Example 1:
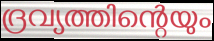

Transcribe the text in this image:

ദ്രവ്യത്തിന്റെയും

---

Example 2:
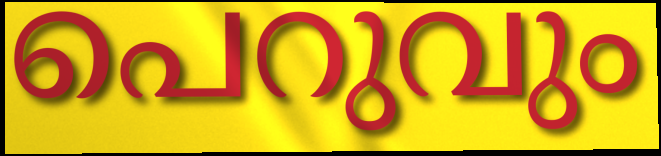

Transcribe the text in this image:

പെറുവും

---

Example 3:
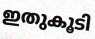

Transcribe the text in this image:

ഇതുകൂടി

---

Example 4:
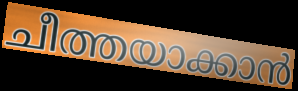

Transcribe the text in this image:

ചീത്തയാക്കാൻ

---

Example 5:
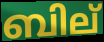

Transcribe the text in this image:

ബില്